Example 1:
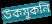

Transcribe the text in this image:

উকমুকনি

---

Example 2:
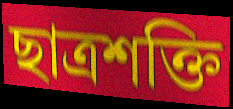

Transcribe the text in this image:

ছাত্ৰশক্তি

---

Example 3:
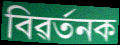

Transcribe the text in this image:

বিৱৰ্তনক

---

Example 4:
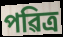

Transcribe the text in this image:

পৱিত্ৰ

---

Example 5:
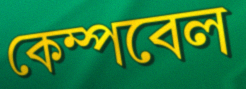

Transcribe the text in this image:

কেম্পবেল